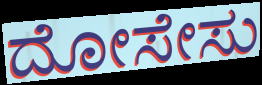
ದೋಸೇಸು